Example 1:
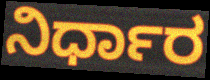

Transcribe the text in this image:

ನಿರ್ಧಾರ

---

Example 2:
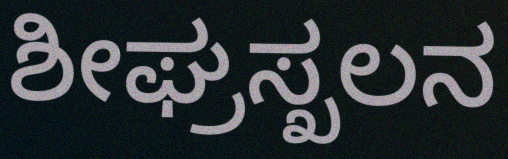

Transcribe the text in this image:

ಶೀಘ್ರಸ್ಖಲನ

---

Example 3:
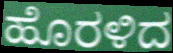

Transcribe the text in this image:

ಹೊರಳಿದ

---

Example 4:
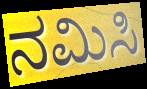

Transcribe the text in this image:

ನಮಿಸಿ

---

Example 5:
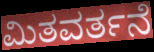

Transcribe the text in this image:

ಮಿತವರ್ತನೆ